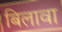
बिलावा